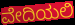
ವೇದಿಯಲಿ